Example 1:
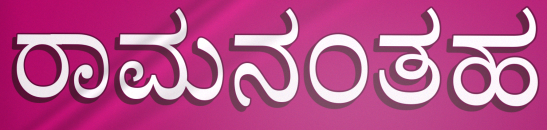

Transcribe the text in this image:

ರಾಮನಂತಹ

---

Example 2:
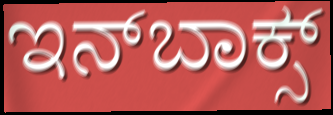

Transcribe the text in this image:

ಇನ್‍ಬಾಕ್ಸ್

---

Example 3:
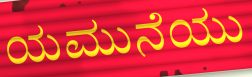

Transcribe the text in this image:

ಯಮುನೆಯು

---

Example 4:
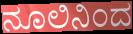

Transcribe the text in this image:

ನೂಲಿನಿಂದ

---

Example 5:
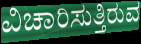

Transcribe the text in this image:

ವಿಚಾರಿಸುತ್ತಿರುವ